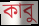
কাবু